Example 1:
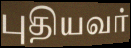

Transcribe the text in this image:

புதியவர்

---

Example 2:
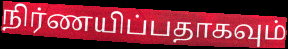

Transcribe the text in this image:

நிர்ணயிப்பதாகவும்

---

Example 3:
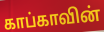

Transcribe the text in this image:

காப்காவின்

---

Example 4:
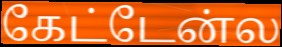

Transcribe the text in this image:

கேட்டேன்ல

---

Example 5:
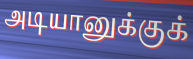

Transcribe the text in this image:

அடியானுக்குக்